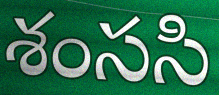
శంససి